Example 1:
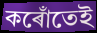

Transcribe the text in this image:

কৰোঁতেই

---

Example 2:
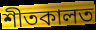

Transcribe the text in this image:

শীতকালত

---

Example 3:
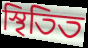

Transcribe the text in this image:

স্থিতিত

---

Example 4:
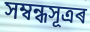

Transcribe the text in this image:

সম্বন্ধসূত্ৰৰ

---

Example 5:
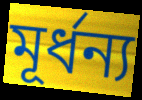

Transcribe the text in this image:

মূৰ্ধন্য